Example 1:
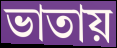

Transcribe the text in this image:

ভাতায়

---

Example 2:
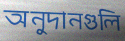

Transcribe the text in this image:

অনুদানগুলি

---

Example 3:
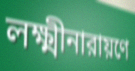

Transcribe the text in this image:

লক্ষ্মীনারায়ণে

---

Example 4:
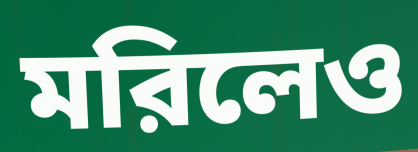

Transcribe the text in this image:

মরিলেও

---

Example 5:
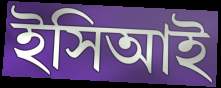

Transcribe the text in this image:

ইসিআই